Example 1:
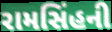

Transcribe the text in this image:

રામસિંહની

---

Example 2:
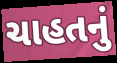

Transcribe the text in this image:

ચાહતનું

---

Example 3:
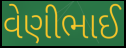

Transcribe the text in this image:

વેણીભાઈ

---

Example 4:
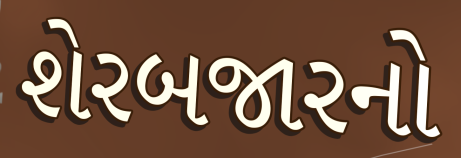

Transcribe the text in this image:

શેરબજારનો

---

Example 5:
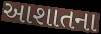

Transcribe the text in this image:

આશાતના